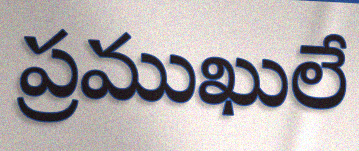
ప్రముఖులే